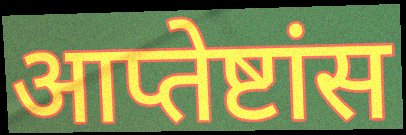
आप्तेष्टांस